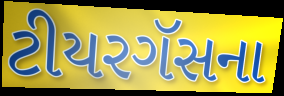
ટીયરગૅસના